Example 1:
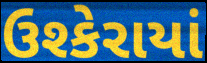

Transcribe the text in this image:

ઉશ્કેરાયાં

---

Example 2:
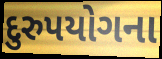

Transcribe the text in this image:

દુરુપયોગના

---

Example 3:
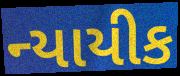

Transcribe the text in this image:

ન્યાયીક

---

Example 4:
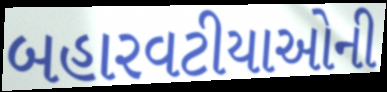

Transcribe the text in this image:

બહારવટીયાઓની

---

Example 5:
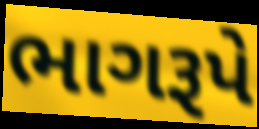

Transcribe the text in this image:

ભાગરૂપે